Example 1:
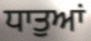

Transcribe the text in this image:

ਧਾਤੁਆਂ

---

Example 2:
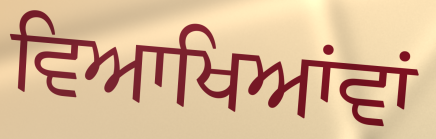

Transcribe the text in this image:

ਵਿਆਖਿਆਂਵਾਂ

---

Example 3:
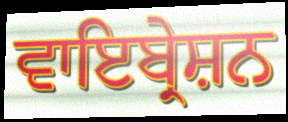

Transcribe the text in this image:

ਵਾਇਬ੍ਰੇਸ਼ਨ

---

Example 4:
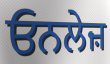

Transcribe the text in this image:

ਓਨਲੇਜ਼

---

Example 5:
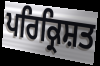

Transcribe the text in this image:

ਪਰਿਕ੍ਰਿਸ਼ਤ